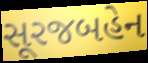
સૂરજબહેન